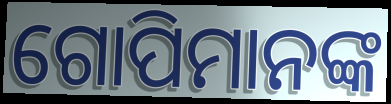
ଗୋପିମାନଙ୍କ